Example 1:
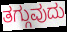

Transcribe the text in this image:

ತಗ್ಗುವುದು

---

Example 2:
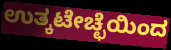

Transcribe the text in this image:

ಉತ್ಕಟೇಚ್ಛೆಯಿಂದ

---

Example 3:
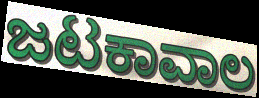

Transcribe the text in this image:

ಜಟಕಾವಾಲ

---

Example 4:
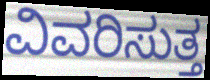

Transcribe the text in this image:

ವಿವರಿಸುತ್ತ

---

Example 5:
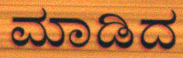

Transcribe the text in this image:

ಮಾಡಿದ